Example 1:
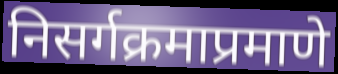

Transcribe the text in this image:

निसर्गक्रमाप्रमाणे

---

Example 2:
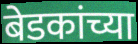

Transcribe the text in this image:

बेडकांच्या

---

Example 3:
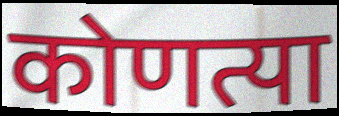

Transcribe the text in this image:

कोणत्या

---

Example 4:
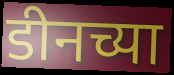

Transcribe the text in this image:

डीनच्या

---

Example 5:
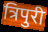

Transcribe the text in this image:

त्रिपुरी